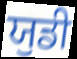
ਯੁਡੀ